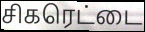
சிகரெட்டை